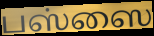
பஸ்ஸை